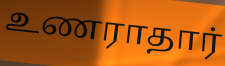
உணராதார்